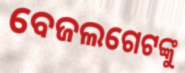
ବେଜଲଗେଟଙ୍କୁ